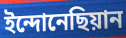
ইন্দোনেছিয়ান